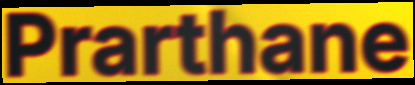
Prarthane